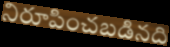
నిరూపించబడినది